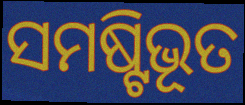
ସମଷ୍ଟିଭୂତ